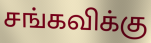
சங்கவிக்கு